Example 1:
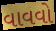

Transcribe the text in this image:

વાવવો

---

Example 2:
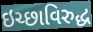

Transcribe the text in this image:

ઇચ્છાવિરુદ્ધ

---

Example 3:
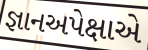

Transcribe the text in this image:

જ્ઞાનઅપેક્ષાએ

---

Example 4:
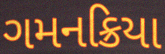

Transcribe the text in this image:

ગમનક્રિયા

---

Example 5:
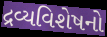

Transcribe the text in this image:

દ્રવ્યવિશેષનો